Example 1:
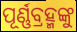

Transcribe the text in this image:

ପୂର୍ଣ୍ଣବ୍ରହ୍ମଙ୍କୁ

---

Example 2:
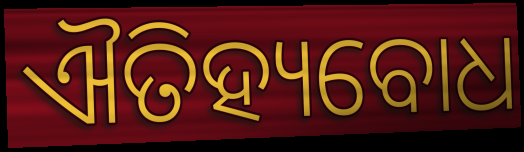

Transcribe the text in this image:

ଐତିହ୍ୟବୋଧ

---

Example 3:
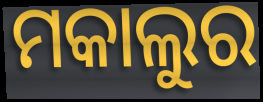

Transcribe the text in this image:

ମକାଲୁର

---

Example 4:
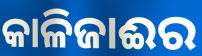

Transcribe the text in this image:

କାଳିଜାଈର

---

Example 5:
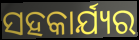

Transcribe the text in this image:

ସହକାର୍ଯ୍ୟର